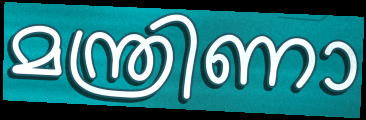
മന്ത്രിണാ